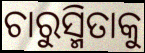
ଚାରୁସ୍ମିତାକୁ